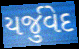
યર્જુવેદ